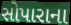
સોપારાના